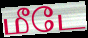
மீடே